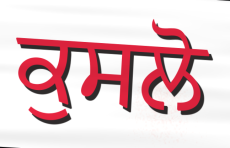
ਕੁਸਲੋ